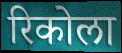
रिकोला